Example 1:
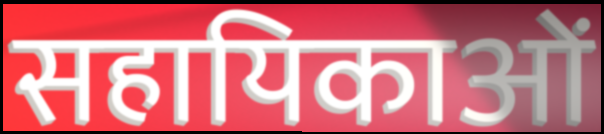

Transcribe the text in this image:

सहायिकाओं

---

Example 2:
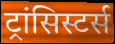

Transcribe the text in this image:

ट्रांसिस्टर्स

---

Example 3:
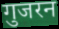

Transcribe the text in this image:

गुजरन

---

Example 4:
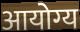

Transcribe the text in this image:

आयोग्य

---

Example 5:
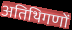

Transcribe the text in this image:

अतिथिगणों